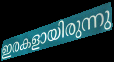
ഇരകളായിരുന്നു